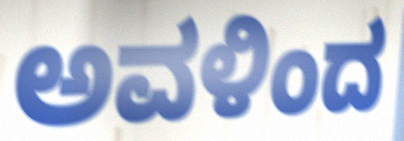
ಅವಳಿಂದ